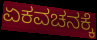
ಏಕವಚನಕ್ಕೆ